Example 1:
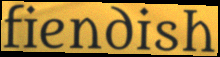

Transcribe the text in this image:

fiendish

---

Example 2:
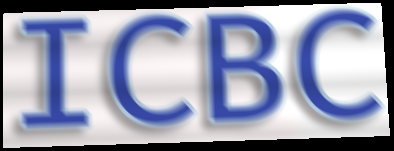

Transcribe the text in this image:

ICBC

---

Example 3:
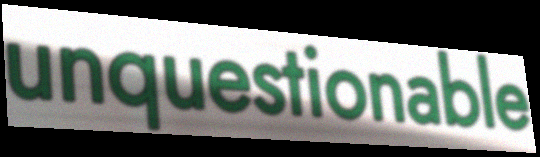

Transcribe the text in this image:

unquestionable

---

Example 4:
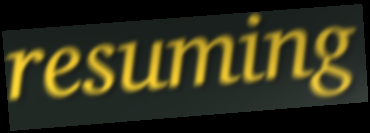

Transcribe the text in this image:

resuming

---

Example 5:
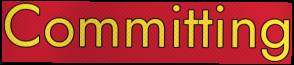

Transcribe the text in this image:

Committing